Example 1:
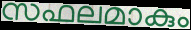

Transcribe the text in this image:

സഫലമാകും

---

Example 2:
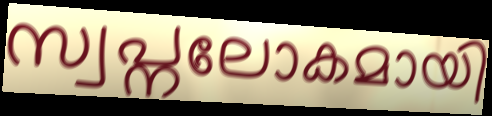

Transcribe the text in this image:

സ്വപ്നലോകമായി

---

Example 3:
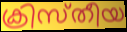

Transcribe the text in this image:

ക്രിസ്‌തീയ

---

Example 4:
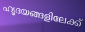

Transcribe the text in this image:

ഹൃദയങ്ങളിലേക്ക്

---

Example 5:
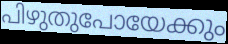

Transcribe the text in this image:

പിഴുതുപോയേക്കും